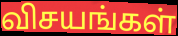
விசயங்கள்